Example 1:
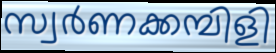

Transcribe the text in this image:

സ്വർണക്കമ്പിളി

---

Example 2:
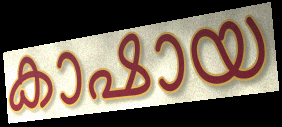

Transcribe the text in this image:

കാഷായ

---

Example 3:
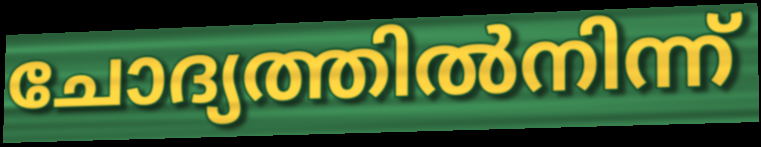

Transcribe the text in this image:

ചോദ്യത്തിൽനിന്ന്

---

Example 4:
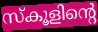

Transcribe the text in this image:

സ്കൂളിന്റെ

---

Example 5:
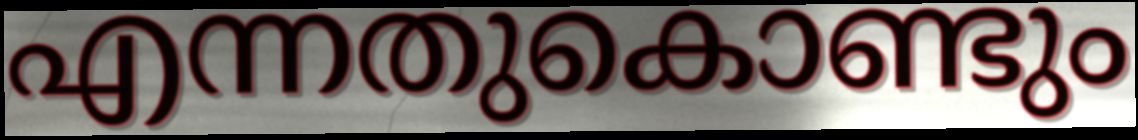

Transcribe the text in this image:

എന്നതുകൊണ്ടും